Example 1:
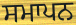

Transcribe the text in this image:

ਸਮਾਪਨ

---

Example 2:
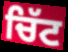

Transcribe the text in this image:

ਚਿੱਟ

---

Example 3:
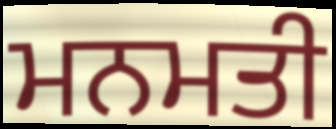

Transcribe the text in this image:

ਮਨਮਤੀ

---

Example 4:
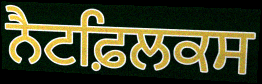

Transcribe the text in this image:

ਨੈਟਫ਼ਿਲਕਸ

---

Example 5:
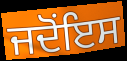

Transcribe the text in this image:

ਜਦੋਂਇਸ